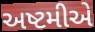
અષ્ટમીએ